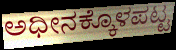
ಅಧೀನಕ್ಕೊಳಪಟ್ಟ